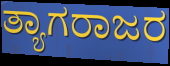
ತ್ಯಾಗರಾಜರ